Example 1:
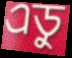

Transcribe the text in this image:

এডু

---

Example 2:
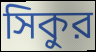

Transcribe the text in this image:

সিকুর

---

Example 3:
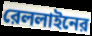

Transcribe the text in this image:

রেললাইনের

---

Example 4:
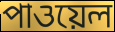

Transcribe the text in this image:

পাওয়েল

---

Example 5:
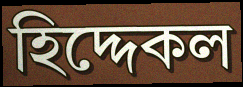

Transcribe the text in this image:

হিদ্দেকল